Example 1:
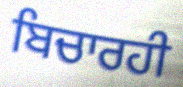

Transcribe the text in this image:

ਬਿਚਾਰਹੀ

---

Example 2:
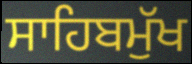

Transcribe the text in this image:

ਸਾਹਿਬਮੁੱਖ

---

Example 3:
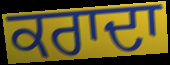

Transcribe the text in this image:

ਕਰਾਦਾ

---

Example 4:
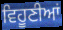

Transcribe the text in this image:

ਵਿਹੂਣੀਆਂ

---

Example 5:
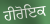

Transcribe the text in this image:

ਹੀਰੋਇਕ